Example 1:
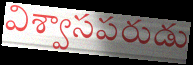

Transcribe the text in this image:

విశ్వాసపరుడు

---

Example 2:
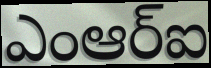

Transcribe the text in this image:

ఎంఆర్ఐ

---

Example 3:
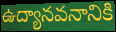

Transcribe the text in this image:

ఉద్యానవనానికి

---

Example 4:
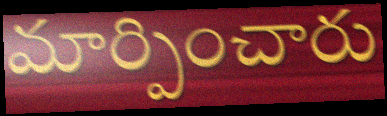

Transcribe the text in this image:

మార్పించారు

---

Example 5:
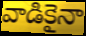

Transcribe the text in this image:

వాడికైనా